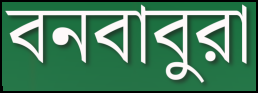
বনবাবুরা